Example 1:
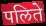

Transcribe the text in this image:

पलिते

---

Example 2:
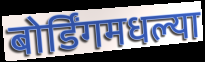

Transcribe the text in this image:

बोर्डिंगमधल्या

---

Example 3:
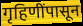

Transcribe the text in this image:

गृहिणींपासून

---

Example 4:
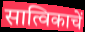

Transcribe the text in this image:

सात्विकाचें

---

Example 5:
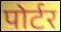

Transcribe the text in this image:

पोर्टर